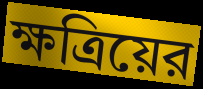
ক্ষত্রিয়ের